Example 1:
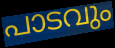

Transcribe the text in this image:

പാടവും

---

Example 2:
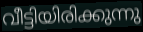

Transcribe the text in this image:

വീട്ടിയിരിക്കുന്നു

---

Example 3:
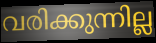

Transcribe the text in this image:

വരിക്കുന്നില്ല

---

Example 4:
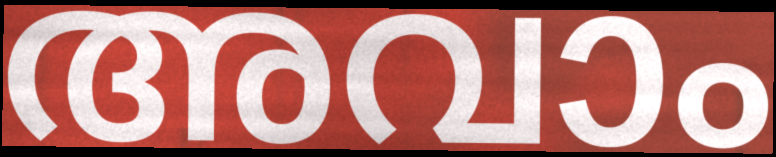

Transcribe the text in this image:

അവാം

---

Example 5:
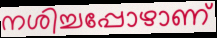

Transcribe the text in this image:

നശിച്ചപ്പോഴാണ്